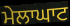
ਮੇਲਾਘਾਟ